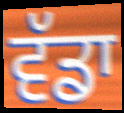
ਵੱਡਾ